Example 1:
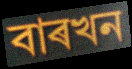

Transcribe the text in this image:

বাৰখন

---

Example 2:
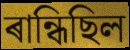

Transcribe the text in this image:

ৰান্ধিছিল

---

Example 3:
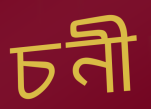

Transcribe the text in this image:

চনী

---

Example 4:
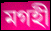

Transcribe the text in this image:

মগহী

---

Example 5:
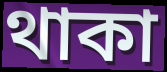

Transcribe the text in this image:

থাকা